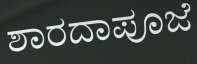
ಶಾರದಾಪೂಜೆ